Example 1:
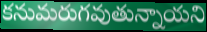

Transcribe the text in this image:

కనుమరుగవుతున్నాయని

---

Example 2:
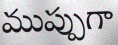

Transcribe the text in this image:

ముప్పుగా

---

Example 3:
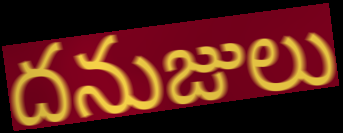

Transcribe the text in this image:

దనుజులు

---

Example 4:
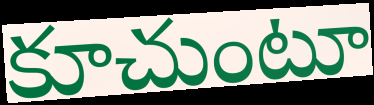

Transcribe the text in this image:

కూచుంటూ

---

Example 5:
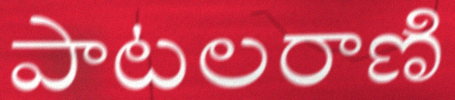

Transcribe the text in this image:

పాటలరాణి